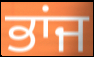
ਭਾਂਜ